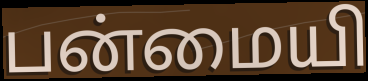
பன்மையி